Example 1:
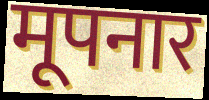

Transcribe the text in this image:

मूपनार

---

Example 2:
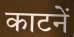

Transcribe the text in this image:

काटनें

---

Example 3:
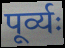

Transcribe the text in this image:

पूर्व्यः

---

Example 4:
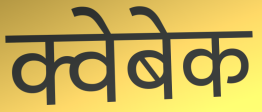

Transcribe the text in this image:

क्वेबेक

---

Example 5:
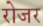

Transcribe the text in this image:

रोजर